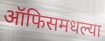
ऑफिसमधल्या